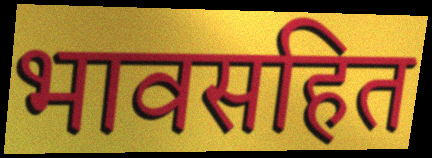
भावसहित